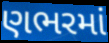
ણભરમાં